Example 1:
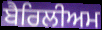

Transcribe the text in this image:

ਬੈਰਿਲੀਅਮ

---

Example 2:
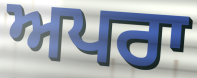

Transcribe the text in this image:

ਅਪਰਾ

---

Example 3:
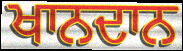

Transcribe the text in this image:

ਖਾਨਦਾਨ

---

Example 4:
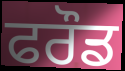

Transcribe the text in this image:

ਫਰੌਡ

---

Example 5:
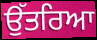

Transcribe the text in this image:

ਉੱਤਰਿਆ